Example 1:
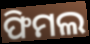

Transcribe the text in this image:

ଫିମଲ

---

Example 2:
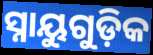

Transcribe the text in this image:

ସ୍ନାୟୁଗୁଡ଼ିକ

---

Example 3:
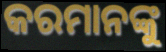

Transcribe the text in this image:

କରମାନଙ୍କୁ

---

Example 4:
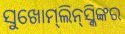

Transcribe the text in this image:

ସୁଖୋମ୍‍ଲିନ୍‍ସ୍କିଙ୍କର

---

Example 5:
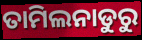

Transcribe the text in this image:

ତାମିଲନାଡୁରୁ